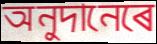
অনুদানেৰে